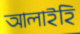
আলাইহি